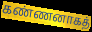
கண்ணனாகத்